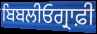
ਬਿਬਲੀਓਗ੍ਰਾਫ਼ੀ